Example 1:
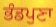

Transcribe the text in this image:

ਭੰਡਪੁਣਾ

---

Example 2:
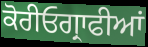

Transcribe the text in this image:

ਕੋਰੀਓਗ੍ਰਾਫੀਆਂ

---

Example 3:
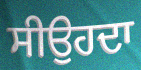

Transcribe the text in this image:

ਸੀਉਹਦਾ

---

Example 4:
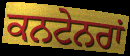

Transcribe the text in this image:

ਕਨਟੇਨਰਾਂ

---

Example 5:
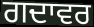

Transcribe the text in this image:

ਗਦਾਵਰ